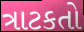
ત્રાટકતો